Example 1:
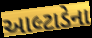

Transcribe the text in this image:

આલ્ટાડેના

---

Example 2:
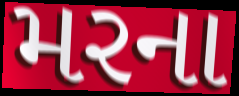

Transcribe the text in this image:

મરના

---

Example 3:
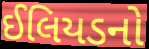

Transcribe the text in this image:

ઈલિયડનો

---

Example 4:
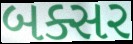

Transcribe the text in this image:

બક્સર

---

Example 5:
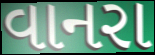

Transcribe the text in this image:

વાનરા